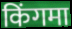
किंगमा